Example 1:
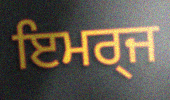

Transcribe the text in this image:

ਇਮਰ੍ਜ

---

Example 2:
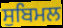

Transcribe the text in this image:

ਸੁਬਿਮਲ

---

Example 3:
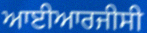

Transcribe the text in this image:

ਆਈਆਰਜੀਸੀ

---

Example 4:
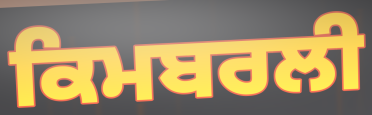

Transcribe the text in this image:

ਕਿਮਬਰਲੀ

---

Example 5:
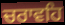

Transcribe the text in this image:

ਚਰਾਵਹਿ